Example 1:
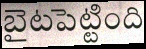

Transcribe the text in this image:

బైటపెట్టింది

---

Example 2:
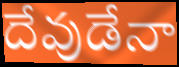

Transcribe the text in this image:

దేవుడేనా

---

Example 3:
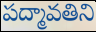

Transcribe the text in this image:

పద్మావతిని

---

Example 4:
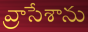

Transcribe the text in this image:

వ్రాసేశాను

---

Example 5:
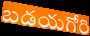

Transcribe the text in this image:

బడయగోరి